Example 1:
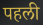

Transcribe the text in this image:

पहली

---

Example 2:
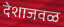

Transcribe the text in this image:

देशाजवळ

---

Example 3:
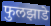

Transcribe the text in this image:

फुलझाडे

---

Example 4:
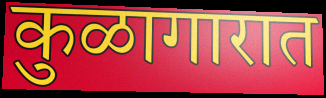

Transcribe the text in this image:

कुळागारात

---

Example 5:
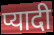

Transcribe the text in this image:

प्यादी